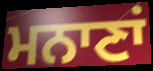
ਮਨਾਣਾਂ